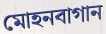
মোহনবাগান